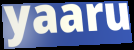
yaaru